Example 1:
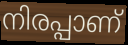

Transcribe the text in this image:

നിരപ്പാണ്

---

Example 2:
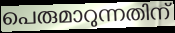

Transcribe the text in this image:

പെരുമാറുന്നതിന്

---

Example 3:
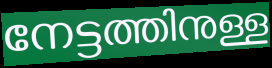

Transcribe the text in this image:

നേട്ടത്തിനുള്ള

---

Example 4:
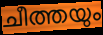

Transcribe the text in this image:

ചീത്തയും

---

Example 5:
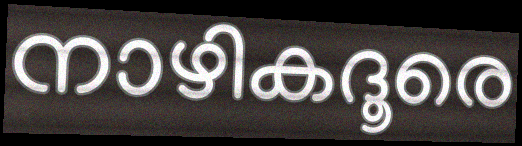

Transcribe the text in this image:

നാഴികദൂരെ